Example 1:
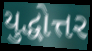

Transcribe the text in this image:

યુદ્ધોત્તર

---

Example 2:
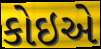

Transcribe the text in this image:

કોઇએ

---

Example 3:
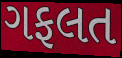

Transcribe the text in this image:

ગફલત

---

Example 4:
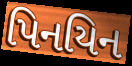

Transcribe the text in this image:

પિનયિન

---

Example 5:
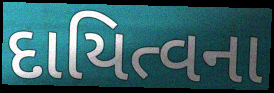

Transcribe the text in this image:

દાયિત્વના